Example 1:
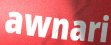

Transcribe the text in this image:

awnari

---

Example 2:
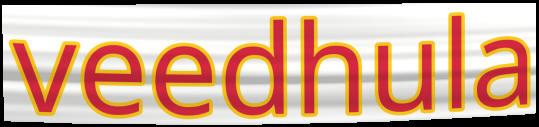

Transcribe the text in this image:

veedhula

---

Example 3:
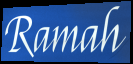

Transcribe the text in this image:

Ramah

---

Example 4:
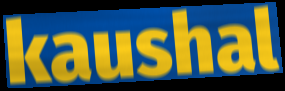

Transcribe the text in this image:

kaushal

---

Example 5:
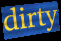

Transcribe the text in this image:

dirty